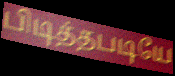
பிடித்தபடியே